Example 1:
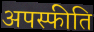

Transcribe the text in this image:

अपस्फीति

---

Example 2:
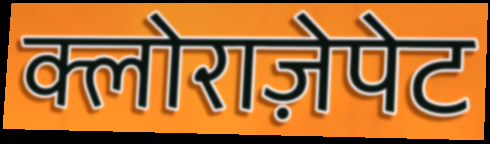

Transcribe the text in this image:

क्लोराज़ेपेट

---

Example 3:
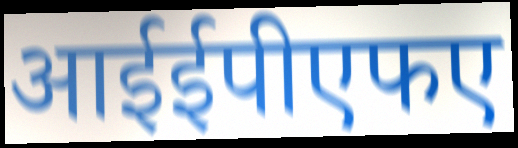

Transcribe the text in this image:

आईईपीएफए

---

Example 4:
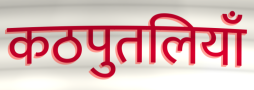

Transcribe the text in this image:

कठपुतलियाँ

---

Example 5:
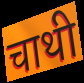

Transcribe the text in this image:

चाथी